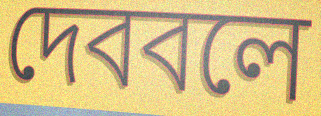
দেববলে